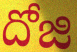
దోజి